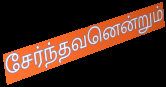
சேர்ந்தவனென்றும்